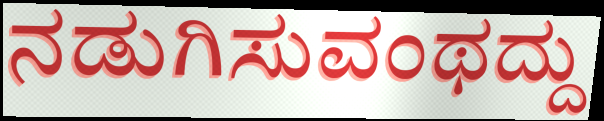
ನಡುಗಿಸುವಂಥದ್ದು